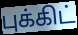
புக்கிட்